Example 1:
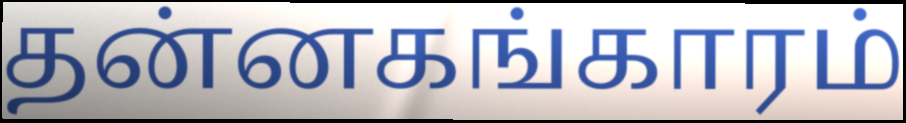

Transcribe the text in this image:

தன்னகங்காரம்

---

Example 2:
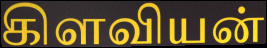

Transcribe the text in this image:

கிளவியன்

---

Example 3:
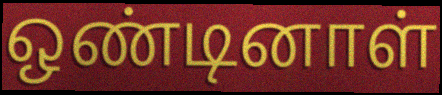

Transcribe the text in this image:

ஒண்டினாள்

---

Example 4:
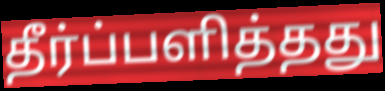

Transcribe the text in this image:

தீர்ப்பளித்தது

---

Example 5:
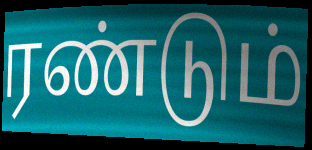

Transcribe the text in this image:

ரண்டும்